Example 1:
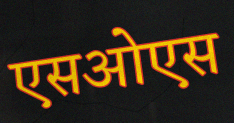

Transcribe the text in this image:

एसओएस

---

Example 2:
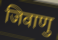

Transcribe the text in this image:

जिवाणु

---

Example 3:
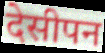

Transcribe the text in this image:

देसीपन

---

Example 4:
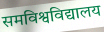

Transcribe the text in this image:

समविश्वविद्यालय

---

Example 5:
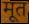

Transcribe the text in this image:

मूत